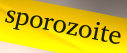
sporozoite